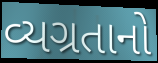
વ્યગ્રતાનો